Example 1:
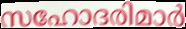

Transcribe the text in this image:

സഹോദരിമാർ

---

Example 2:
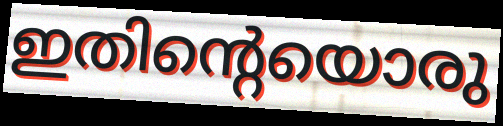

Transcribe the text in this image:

ഇതിന്റെയൊരു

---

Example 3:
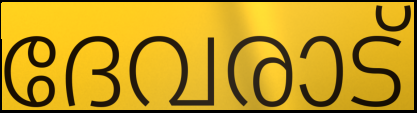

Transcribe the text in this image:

ദേവരാട്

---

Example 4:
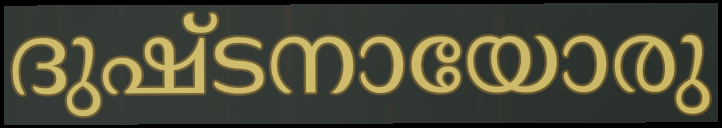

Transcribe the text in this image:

ദുഷ്ടനായോരു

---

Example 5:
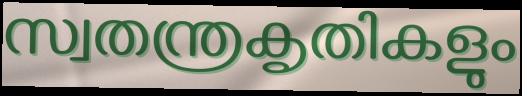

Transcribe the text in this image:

സ്വതന്ത്രകൃതികളും